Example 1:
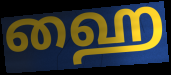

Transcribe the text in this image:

ஹை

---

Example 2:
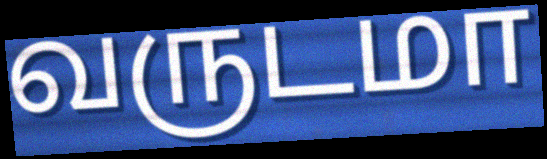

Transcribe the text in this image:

வருடமா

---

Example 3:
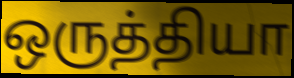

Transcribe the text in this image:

ஒருத்தியா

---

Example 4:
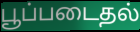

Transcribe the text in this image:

பூப்படைதல்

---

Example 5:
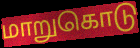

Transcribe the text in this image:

மாறுகொடு